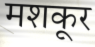
मशकूर